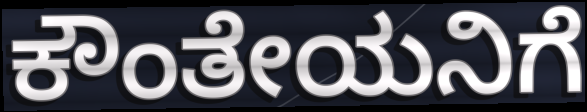
ಕೌಂತೇಯನಿಗೆ